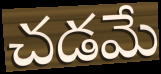
చడమే